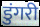
डुंगरी